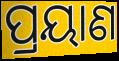
ପ୍ରୟାଣ